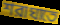
শরাঘাতে